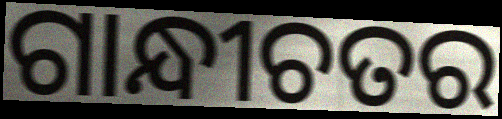
ଗାନ୍ଧୀଚତର